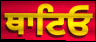
ਥਾਟਿਓ